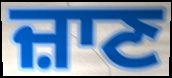
ਜ਼ਾਣ